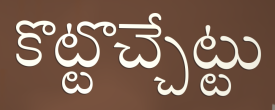
కొట్టొచ్చేట్టు